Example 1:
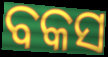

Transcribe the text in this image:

ବକସ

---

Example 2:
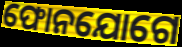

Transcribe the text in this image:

ଫୋନଯୋଗେ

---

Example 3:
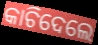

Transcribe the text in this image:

କାଚିଦେଲେ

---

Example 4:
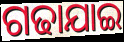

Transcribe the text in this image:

ଗଢାଯାଇ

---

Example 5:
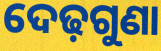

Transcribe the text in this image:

ଦେଢ଼ଗୁଣା